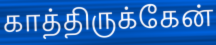
காத்திருக்கேன்